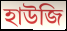
হাউজি